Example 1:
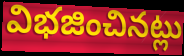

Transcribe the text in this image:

విభజించినట్లు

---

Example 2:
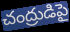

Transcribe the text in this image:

చంద్రుడిపై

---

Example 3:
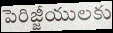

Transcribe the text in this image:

పెరిజ్జీయులకు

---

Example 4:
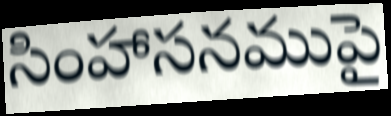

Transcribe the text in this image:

సింహాసనముపై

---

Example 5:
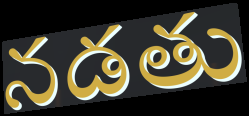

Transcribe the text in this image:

నడతు